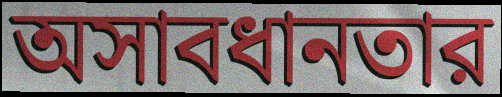
অসাবধানতার